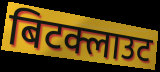
बिटक्लाउट